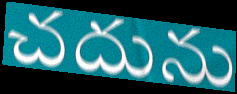
చదును